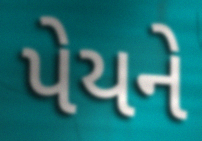
પેયને